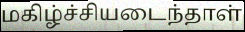
மகிழ்ச்சியடைந்தாள்